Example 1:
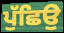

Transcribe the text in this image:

ਪੁੱਛਿਉ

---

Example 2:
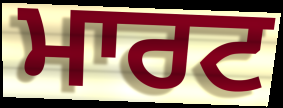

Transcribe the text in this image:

ਮਾਰਟ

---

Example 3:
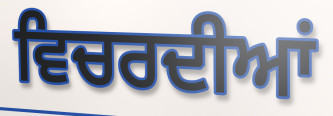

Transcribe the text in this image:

ਵਿਚਰਦੀਆਂ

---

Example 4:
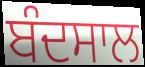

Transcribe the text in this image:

ਬੰਦਸਾਲ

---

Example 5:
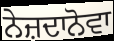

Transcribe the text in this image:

ਨੇਜ਼ਦਾਨੋਵਾ